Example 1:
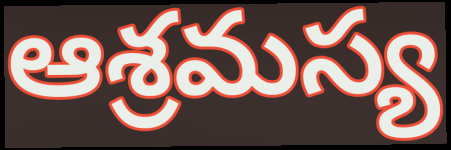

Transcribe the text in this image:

ఆశ్రమస్య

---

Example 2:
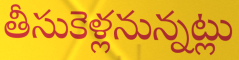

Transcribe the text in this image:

తీసుకెళ్లనున్నట్లు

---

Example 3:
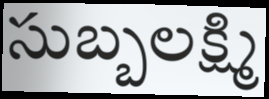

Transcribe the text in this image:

సుబ్బలక్ష్మి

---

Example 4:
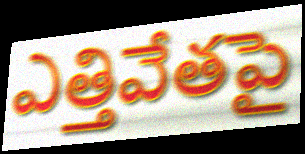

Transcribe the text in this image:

ఎత్తివేతపై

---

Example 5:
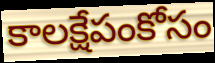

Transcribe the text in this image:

కాలక్షేపంకోసం